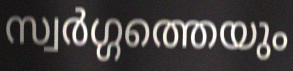
സ്വർഗ്ഗത്തെയും